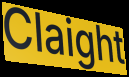
Claight